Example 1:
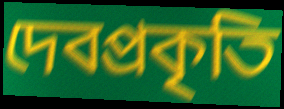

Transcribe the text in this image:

দেবপ্রকৃতি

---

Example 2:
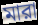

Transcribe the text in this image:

মারা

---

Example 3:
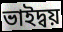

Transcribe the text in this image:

ভাইদ্বয়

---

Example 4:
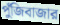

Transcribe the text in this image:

পুঁজিবাজার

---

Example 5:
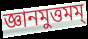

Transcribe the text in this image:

জ্ঞানমুত্তমম্